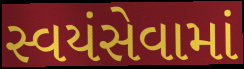
સ્વયંસેવામાં